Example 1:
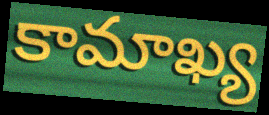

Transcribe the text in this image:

కామాఖ్య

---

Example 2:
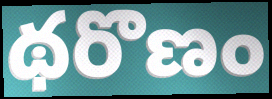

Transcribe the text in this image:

థరొణం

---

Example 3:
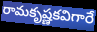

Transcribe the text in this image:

రామకృష్ణకవిగారే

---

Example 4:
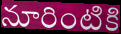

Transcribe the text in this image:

నూరింటికి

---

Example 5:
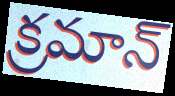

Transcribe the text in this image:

క్రమాన్